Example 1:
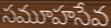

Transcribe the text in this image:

సమూహసేవ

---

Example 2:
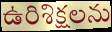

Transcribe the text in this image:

ఉరిశిక్షలను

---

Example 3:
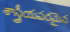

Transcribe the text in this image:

శాస్త్రీయపరమైన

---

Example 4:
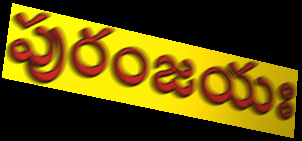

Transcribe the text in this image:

పురంజయః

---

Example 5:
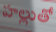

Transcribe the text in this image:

హల్లుతో